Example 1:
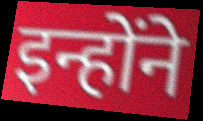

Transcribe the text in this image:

इन्होंने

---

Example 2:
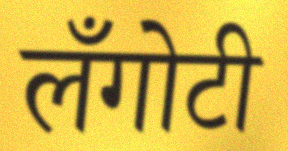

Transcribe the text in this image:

लँगोटी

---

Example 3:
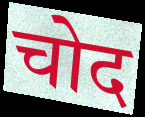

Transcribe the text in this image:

चोद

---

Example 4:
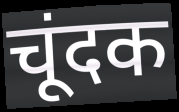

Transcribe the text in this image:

चूंदक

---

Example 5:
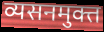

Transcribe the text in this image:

व्यसनमुक्त